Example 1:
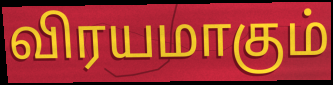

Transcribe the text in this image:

விரயமாகும்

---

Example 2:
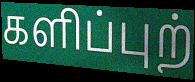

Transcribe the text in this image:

களிப்புற்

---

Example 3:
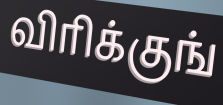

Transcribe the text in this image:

விரிக்குங்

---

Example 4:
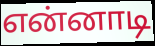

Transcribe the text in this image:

என்னாடி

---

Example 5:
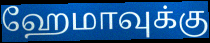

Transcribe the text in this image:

ஹேமாவுக்கு